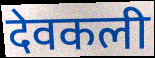
देवकली